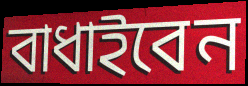
বাধাইবেন